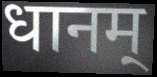
धानम्